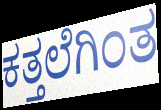
ಕತ್ತಲೆಗಿಂತ